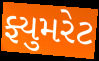
ફ્યુમરેટ